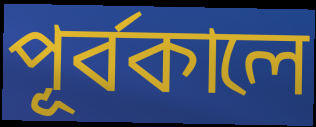
পূর্বকালে